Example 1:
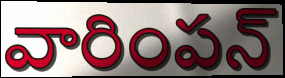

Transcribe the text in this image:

వారింపన్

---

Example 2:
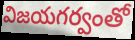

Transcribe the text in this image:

విజయగర్వంతో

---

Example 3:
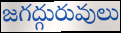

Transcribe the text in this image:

జగద్గురువులు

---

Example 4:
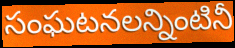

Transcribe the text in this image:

సంఘటనలన్నింటినీ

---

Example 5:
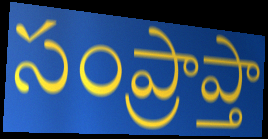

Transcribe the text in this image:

సంప్రాప్తా